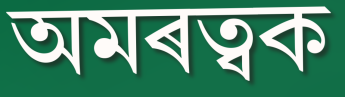
অমৰত্বক